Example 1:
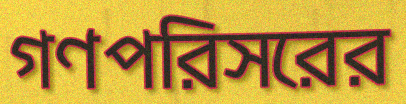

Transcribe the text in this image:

গণপরিসরের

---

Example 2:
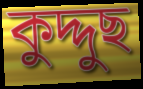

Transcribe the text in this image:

কুদ্দুছ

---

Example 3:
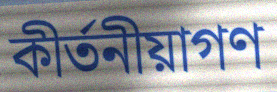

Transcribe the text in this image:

কীর্তনীয়াগণ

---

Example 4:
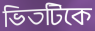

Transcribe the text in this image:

ভিতটিকে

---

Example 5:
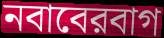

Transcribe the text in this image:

নবাবেরবাগ